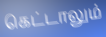
கெட்டாலும்